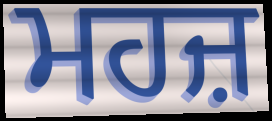
ਮਹਜ਼